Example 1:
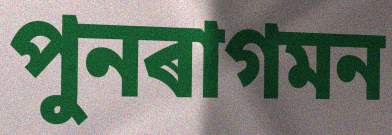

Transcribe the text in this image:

পুনৰাগমন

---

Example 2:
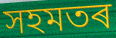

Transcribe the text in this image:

সহমতৰ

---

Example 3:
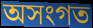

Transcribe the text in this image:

অসংগত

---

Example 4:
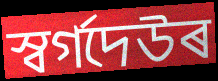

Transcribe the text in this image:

স্বৰ্গদেউৰ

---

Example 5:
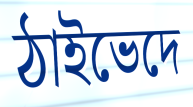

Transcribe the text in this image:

ঠাইভেদে